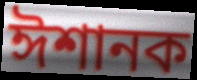
ঈশানক